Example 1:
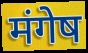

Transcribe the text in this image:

मंगेष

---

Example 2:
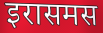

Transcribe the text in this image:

इरासमस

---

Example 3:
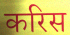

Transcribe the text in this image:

करिस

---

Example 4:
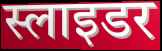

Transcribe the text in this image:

स्लाइडर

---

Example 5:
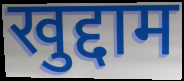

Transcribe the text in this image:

खुद्दाम